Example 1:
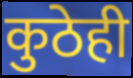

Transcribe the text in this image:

कुठेही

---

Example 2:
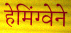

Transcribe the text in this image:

हेमिंग्वेने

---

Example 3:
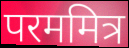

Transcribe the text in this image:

परममित्र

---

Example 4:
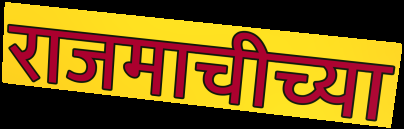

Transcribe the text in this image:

राजमाचीच्या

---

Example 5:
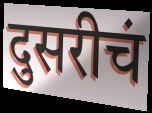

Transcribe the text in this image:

दुसरीचं